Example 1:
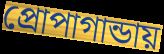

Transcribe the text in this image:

প্রোপাগান্ডায়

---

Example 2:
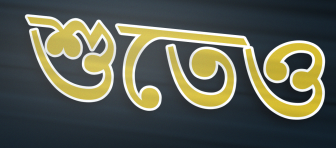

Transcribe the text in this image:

শুতেও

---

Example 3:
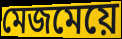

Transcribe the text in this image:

মেজমেয়ে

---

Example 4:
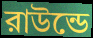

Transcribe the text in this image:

রাউন্ডে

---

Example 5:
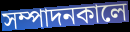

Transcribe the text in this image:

সম্পাদনকালে